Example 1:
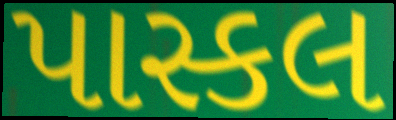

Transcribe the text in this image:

પાસ્કલ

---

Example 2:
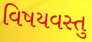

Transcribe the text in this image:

વિષયવસ્તુ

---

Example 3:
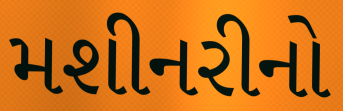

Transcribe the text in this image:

મશીનરીનો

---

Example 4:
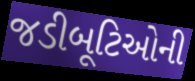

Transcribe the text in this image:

જડીબૂટિઓની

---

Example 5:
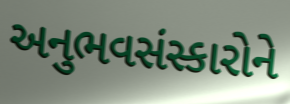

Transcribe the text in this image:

અનુભવસંસ્કારોને